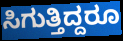
ಸಿಗುತ್ತಿದ್ದರೂ